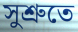
সুশ্ৰুতে